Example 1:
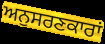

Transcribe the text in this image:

ਅਨੁਸਰਣਕਾਰਾਂ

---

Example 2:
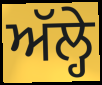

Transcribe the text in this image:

ਅੱਲ੍ਹੇ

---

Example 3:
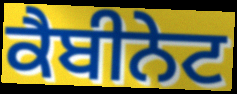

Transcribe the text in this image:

ਕੈਬੀਨੇਟ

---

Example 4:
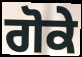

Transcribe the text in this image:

ਗੋਕੇ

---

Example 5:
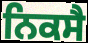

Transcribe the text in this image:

ਨਿਕਸੈ